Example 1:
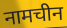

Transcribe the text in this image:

नामचीन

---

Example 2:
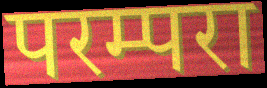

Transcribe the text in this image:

परम्परा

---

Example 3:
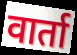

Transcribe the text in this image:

वार्ता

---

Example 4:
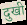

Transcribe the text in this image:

दुखी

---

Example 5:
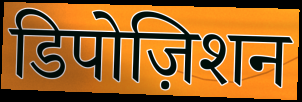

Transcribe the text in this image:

डिपोज़िशन